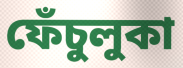
ফেঁচুলুকা